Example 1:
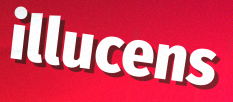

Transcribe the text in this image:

illucens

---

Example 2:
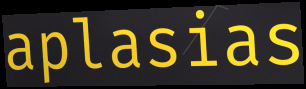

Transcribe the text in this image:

aplasias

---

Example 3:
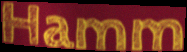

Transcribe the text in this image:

Hamm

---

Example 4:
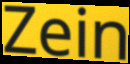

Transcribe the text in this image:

Zein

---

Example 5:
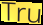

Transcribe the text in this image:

Tru